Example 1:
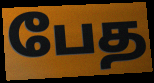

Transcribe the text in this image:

பேத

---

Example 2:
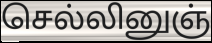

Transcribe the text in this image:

செல்லினுஞ்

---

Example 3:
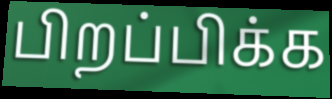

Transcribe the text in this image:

பிறப்பிக்க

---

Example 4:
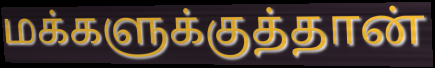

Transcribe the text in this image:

மக்களுக்குத்தான்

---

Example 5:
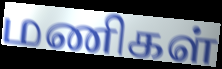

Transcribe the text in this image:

மணிகள்